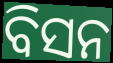
ବିସନ